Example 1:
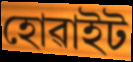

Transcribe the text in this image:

হোৱাইট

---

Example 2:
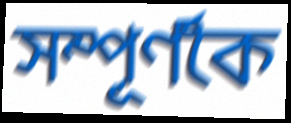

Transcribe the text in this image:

সম্পূৰ্ণকৈ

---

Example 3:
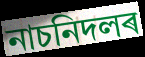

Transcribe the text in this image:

নাচনিদলৰ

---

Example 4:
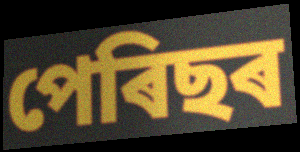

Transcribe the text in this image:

পেৰিছৰ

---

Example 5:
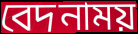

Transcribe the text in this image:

বেদনাময়